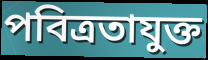
পবিত্রতাযুক্ত